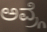
ಅವ್ರ್ಗೆ